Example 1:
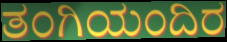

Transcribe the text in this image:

ತಂಗಿಯಂದಿರ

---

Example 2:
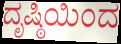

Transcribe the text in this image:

ದೃಷ್ಠಿಯಿಂದ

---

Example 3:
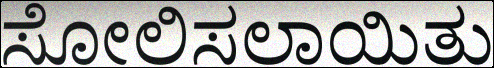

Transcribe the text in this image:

ಸೋಲಿಸಲಾಯಿತು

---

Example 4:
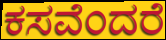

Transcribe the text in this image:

ಕಸವೆಂದರೆ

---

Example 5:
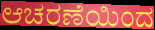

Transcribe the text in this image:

ಆಚರಣೆಯಿಂದ